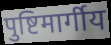
पुष्टिमार्गीय